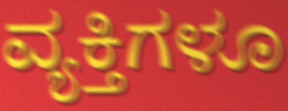
ವ್ಯಕ್ತಿಗಳೂ